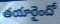
తయారైందో